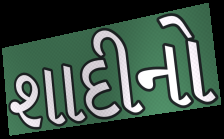
શાદીનો